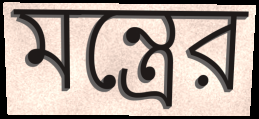
মন্ত্রের